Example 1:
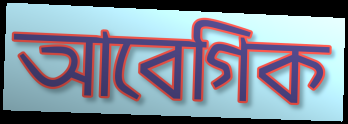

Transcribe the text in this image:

আবেগিক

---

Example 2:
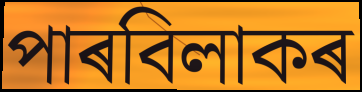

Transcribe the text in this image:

পাৰবিলাকৰ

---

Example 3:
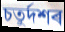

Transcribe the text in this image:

চতুৰ্দশৰ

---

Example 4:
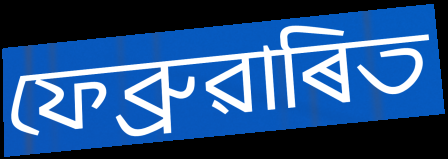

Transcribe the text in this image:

ফেব্ৰুৱাৰিত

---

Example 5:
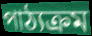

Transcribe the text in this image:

পাঠ্যক্ৰম